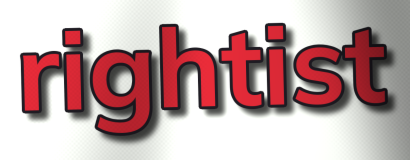
rightist